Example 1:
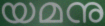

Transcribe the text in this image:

യമനു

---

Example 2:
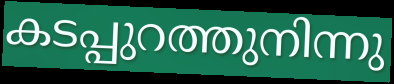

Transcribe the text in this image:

കടപ്പുറത്തുനിന്നു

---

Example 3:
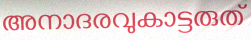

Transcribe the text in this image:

അനാദരവുകാട്ടരുത്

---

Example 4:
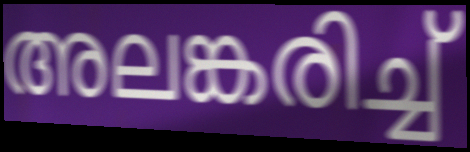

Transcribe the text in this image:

അലങ്കരിച്ച്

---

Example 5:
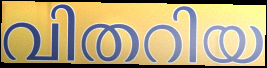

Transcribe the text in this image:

വിതറിയ